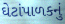
ઘેટાંપાળકનું